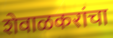
शेवाळकरांचा